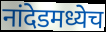
नांदेडमध्येच